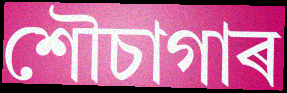
শৌচাগাৰ